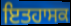
ਇਤਹਾਸਕ